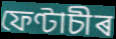
ফেণ্টাচীৰ